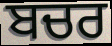
ਬਚਰ